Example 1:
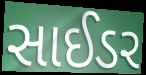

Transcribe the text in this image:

સાઈડર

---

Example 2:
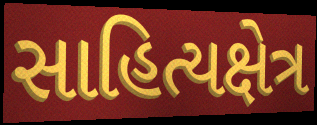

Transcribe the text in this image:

સાહિત્યક્ષેત્ર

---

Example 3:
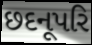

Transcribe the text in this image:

છદનૂપરિ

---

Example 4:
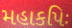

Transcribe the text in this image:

મહાકપિઃ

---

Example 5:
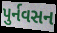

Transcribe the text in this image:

પુર્નવસન